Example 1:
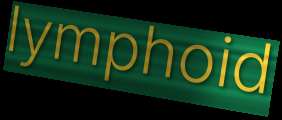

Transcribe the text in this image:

lymphoid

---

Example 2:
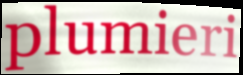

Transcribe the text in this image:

plumieri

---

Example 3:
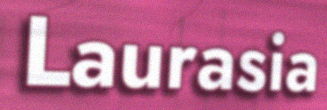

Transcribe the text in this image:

Laurasia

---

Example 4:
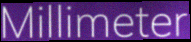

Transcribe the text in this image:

Millimeter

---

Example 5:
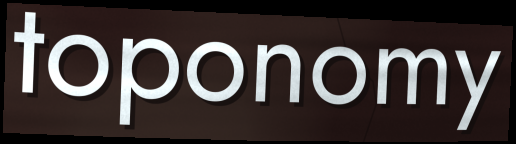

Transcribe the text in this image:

toponomy